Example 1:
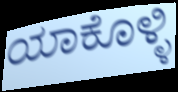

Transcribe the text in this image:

ಯಾಕೊಳ್ಳಿ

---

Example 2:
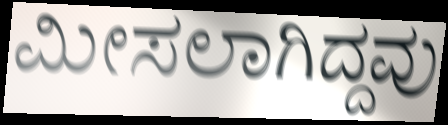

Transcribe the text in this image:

ಮೀಸಲಾಗಿದ್ದವು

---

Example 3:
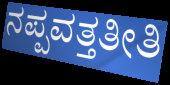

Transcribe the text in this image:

ನಪ್ಪವತ್ತತೀತಿ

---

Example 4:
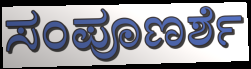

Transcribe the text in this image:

ಸಂಪೂಣರ್ಶೆ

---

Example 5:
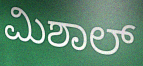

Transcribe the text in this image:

ಮಿಶಾಲ್